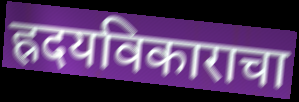
ह्रदयविकाराचा